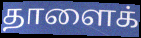
தாளைக்